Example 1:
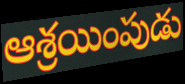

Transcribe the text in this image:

ఆశ్రయింపుడు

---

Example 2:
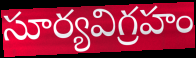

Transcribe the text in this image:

సూర్యవిగ్రహం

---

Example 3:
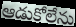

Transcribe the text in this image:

ఆడుకోలేను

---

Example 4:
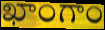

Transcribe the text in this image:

ఖాంగాం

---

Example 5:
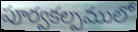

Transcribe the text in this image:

పూర్వకల్పములో